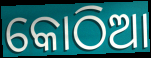
କୋଠିଆ